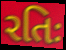
રતિઃ